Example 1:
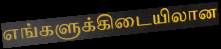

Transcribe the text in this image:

எங்களுக்கிடையிலான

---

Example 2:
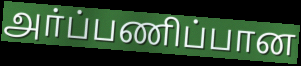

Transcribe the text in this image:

அர்ப்பணிப்பான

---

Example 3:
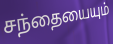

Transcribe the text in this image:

சந்தையையும்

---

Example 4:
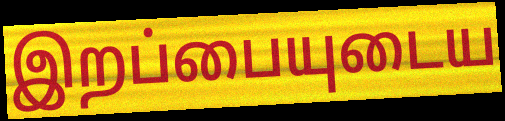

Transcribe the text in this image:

இறப்பையுடைய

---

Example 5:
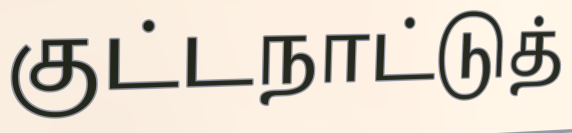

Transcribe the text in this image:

குட்டநாட்டுத்